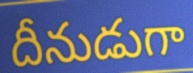
దీనుడుగా